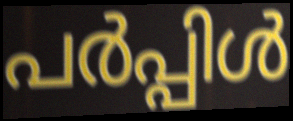
പർപ്പിൾ